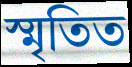
স্মৃতিত